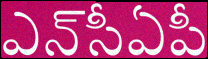
ఎన్‌సీఏపీ